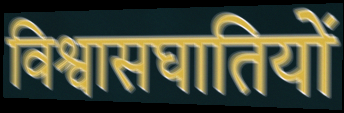
विश्वासघातियों